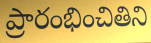
ప్రారంభించితిని